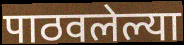
पाठवलेल्या